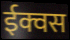
ईक्‍वस